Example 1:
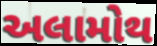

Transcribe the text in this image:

અલામોથ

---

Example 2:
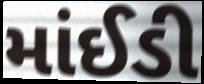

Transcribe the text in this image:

માંઈડી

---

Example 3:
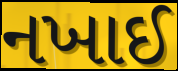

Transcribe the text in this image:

નખાઈ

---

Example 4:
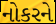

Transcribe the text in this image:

નોકરને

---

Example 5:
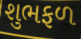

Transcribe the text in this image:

શુભફળ